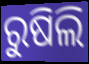
ରୁଷିଲି